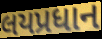
લયપ્રધાન